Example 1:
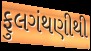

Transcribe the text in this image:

ફુલગંથણીથી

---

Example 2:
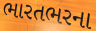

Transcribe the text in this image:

ભારતભરના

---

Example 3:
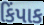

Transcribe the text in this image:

કિંપાક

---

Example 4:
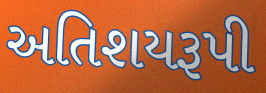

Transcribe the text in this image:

અતિશયરૂપી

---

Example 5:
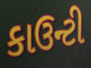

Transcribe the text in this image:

કાઉન્ટી